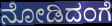
ನೋಡಿದಂಗೆ